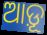
ଆଡ଼ୂ